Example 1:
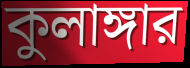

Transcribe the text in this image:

কুলাঙ্গার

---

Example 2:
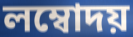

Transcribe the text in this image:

লম্বোদয়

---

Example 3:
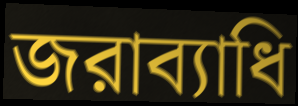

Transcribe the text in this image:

জরাব্যাধি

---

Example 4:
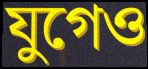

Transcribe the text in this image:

যুগেও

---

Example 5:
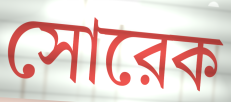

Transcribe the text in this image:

সোরেক